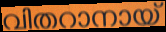
വിതറാനായ്